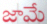
జామే